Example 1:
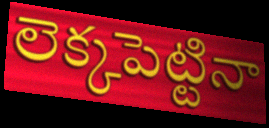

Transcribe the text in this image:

లెక్కపెట్టినా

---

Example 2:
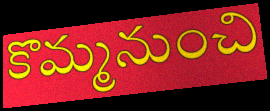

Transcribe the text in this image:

కొమ్మనుంచి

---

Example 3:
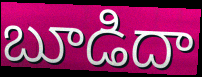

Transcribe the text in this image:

బూడిదా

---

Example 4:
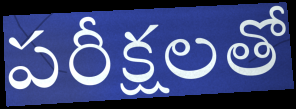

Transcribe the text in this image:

పరీక్షలతో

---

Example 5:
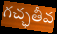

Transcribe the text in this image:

గచ్ఛతీవ